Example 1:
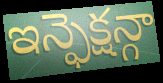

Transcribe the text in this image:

ఇన్ఫెక్షన్గా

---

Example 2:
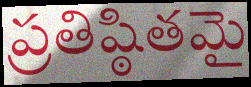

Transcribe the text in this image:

ప్రతిష్ఠితమై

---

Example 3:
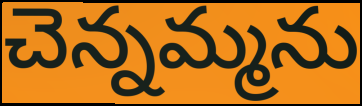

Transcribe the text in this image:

చెన్నమ్మను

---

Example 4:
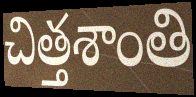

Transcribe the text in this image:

చిత్తశాంతి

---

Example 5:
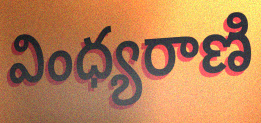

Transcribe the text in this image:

వింధ్యరాణి